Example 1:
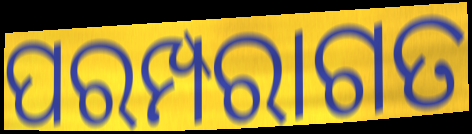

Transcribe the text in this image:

ପରମ୍ପରାଗତ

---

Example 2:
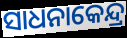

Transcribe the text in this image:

ସାଧନାକେନ୍ଦ୍ର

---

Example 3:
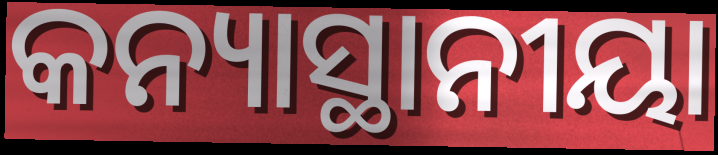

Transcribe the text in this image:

କନ୍ୟାସ୍ଥାନୀୟା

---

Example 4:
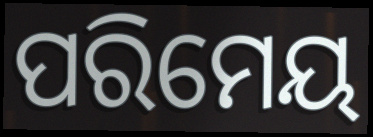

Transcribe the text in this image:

ପରିମେୟ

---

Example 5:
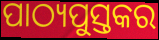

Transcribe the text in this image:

ପାଠ୍ୟପୁସ୍ତକର